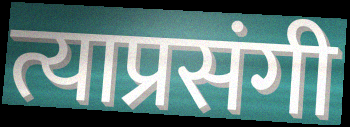
त्याप्रसंगी